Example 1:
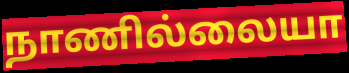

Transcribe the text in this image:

நாணில்லையா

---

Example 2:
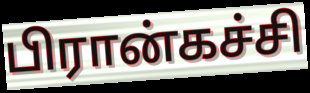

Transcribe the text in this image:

பிரான்கச்சி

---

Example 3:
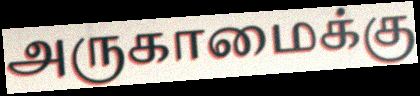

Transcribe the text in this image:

அருகாமைக்கு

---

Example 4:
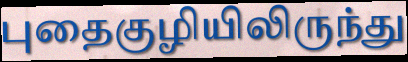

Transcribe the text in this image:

புதைகுழியிலிருந்து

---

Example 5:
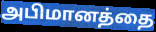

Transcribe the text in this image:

அபிமானத்தை